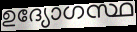
ഉദ്യോഗസ്ഥ